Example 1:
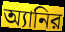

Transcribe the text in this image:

অ্যানির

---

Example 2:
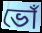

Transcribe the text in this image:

ভোঁ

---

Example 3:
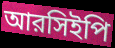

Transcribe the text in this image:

আরসিইপি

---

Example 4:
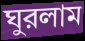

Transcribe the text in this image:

ঘুরলাম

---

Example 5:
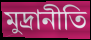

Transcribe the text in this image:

মুদ্রানীতি